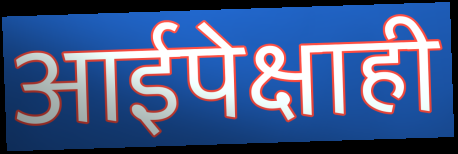
आईपेक्षाही